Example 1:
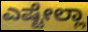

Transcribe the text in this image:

ಎಷ್ಟೇಲ್ಲಾ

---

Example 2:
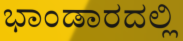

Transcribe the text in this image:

ಭಾಂಡಾರದಲ್ಲಿ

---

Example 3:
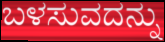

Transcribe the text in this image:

ಬಳಸುವದನ್ನು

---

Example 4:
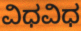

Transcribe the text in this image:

ವಿಧವಿಧ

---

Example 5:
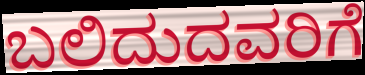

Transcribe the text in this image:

ಬಲಿದುದವರಿಗೆ